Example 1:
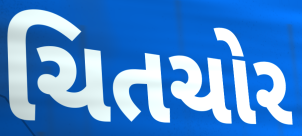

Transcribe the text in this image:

ચિતચોર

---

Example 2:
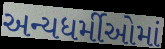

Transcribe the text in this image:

અન્યધર્મીઓમાં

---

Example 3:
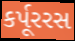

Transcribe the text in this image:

કર્પૂરરસ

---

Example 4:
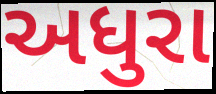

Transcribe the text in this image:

અધુરા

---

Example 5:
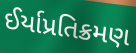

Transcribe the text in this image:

ઈર્યાપ્રતિક્રમણ